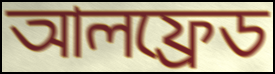
আলফ্ৰেড